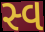
સ્વ